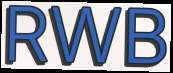
RWB